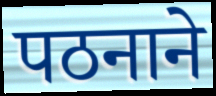
पठनाने